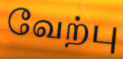
வேற்பு